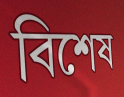
বিশেষ